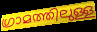
ഗ്രാമത്തിലുള്ള